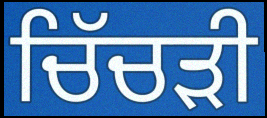
ਚਿੱਚੜੀ